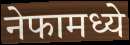
नेफामध्ये